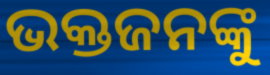
ଭକ୍ତଜନଙ୍କୁ